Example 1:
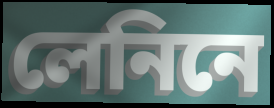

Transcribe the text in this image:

লেনিনে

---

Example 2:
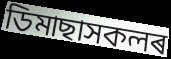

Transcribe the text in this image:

ডিমাছাসকলৰ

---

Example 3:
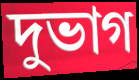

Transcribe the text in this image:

দুভাগ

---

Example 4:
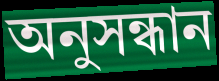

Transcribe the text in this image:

অনুসন্ধান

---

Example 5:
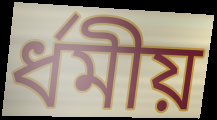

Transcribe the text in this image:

ৰ্ধমীয়